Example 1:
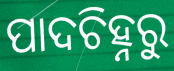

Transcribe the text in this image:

ପାଦଚିହ୍ନରୁ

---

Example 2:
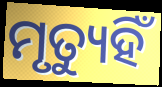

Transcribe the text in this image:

ମୃତ୍ୟୁହିଁ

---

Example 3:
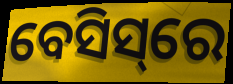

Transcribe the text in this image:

ବେସିସ୍‌ରେ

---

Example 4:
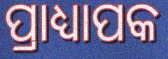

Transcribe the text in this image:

ପ୍ରାଧ୍ୟାପକ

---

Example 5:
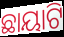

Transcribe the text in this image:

ଛାୟାଟି